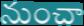
నుంచా